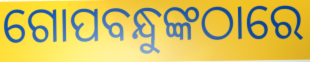
ଗୋପବନ୍ଧୁଙ୍କଠାରେ